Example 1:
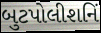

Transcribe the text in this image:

બુટપોલીશનિં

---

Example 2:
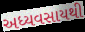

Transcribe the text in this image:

અધ્યવસાયથી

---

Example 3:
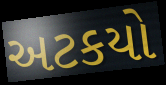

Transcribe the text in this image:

અટકયો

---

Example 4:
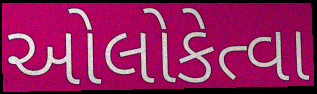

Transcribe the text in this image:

ઓલોકેત્વા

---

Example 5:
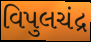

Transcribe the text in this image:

વિપુલચંદ્ર